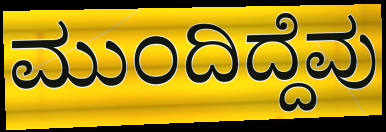
ಮುಂದಿದ್ದೆವು